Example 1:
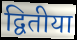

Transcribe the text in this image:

द्वितीया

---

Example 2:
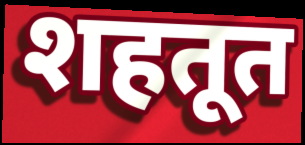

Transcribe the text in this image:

शहतूत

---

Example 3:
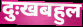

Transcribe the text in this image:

दुःखबहुल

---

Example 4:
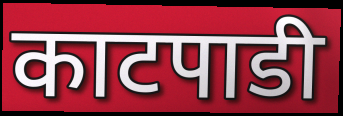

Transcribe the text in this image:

काटपाडी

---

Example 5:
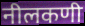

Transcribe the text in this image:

नीलकणी